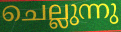
ചെല്ലുന്നു